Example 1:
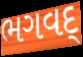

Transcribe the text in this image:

ભગવદ્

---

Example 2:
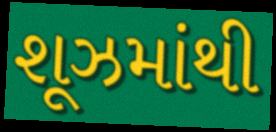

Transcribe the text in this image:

શૂઝમાંથી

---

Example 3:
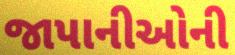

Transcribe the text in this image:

જાપાનીઓની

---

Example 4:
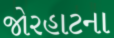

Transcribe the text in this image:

જોરહાટના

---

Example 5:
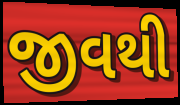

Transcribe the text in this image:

જીવથી